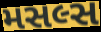
મસલ્સ